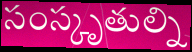
సంస్కృతుల్ని